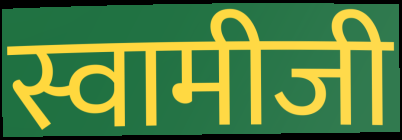
स्वामीजी